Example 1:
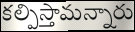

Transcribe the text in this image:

కల్పిస్తామన్నారు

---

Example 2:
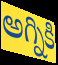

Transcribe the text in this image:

అగ్నికి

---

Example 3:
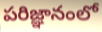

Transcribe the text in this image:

పరిజ్ఞానంలో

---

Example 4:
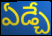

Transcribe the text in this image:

ఏడ్చే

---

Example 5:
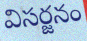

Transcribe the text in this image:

విసర్జనం